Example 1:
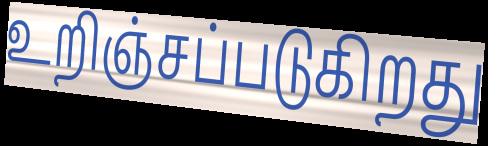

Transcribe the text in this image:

உறிஞ்சப்படுகிறது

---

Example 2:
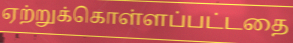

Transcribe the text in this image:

ஏற்றுக்கொள்ளப்பட்டதை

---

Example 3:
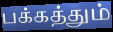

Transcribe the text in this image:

பக்கத்தும்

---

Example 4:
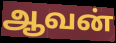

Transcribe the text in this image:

ஆவன்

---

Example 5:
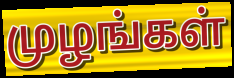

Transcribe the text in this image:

முழங்கள்